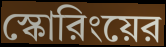
স্কোরিংয়ের